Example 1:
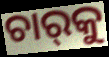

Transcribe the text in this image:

ଚାର୍‌କୁ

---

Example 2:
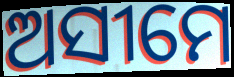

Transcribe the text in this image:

ଅସୀମେ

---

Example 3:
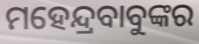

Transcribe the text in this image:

ମହେନ୍ଦ୍ରବାବୁଙ୍କର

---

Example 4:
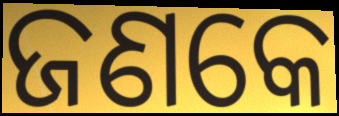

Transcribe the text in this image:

ଜଣକେ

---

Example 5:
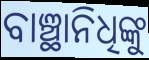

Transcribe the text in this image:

ବାଞ୍ଛାନିଧିଙ୍କୁ